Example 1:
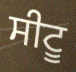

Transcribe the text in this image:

ਸੀਟੂ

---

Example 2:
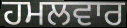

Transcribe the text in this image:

ਹਮਲਵਾਰ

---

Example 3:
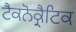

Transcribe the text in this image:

ਟੈਕਨੋਕ੍ਰੈਟਿਕ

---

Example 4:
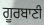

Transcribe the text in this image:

ਗੂਰਬਾਣੀ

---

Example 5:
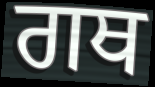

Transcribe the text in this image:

ਗਥ